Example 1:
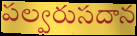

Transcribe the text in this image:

పల్వరుసదాన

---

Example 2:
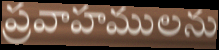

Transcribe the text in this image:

ప్రవాహములను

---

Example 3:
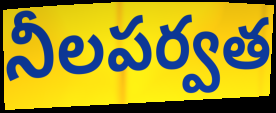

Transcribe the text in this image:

నీలపర్వత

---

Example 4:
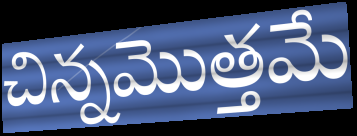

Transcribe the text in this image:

చిన్నమొత్తమే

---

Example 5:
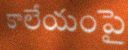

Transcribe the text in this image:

కాలేయంపై